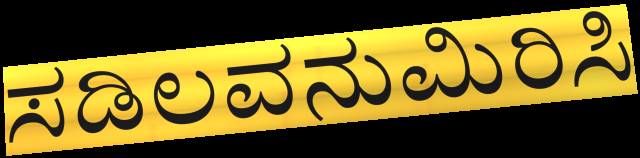
ಸಡಿಲವನುಮಿರಿಸಿ